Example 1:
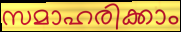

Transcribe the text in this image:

സമാഹരിക്കാം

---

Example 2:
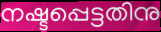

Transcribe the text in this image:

നഷ്ടപ്പെട്ടതിനു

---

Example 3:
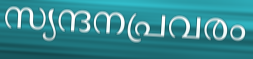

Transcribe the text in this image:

സ്യന്ദനപ്രവരം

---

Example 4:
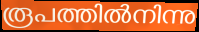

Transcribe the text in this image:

രൂപത്തിൽനിന്നു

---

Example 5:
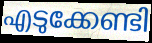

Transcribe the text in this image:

എടുക്കേണ്ടി